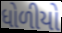
ધોળીયો